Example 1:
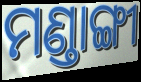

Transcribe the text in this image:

ମଣ୍ଡାଙ୍ଗୀ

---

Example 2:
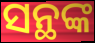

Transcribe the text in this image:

ସନ୍ଥଙ୍କ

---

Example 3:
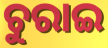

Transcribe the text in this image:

ଚୁରାଇ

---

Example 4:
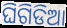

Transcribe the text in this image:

ଘିଗିଡିଆ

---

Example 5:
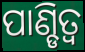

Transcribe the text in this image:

ପାଣ୍ଡିତ୍ୱ